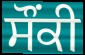
ਸੌਂਕੀ